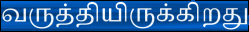
வருத்தியிருக்கிறது